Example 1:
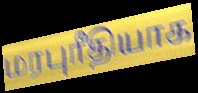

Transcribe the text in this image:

மரபுரீதியாக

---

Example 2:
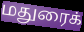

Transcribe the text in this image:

மதுரைக்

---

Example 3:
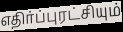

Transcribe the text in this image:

எதிர்ப்புரட்சியும்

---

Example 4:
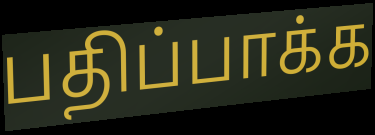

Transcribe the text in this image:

பதிப்பாக்க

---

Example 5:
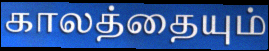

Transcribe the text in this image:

காலத்தையும்